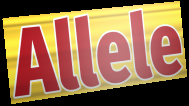
Allele